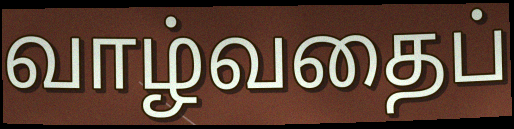
வாழ்வதைப்